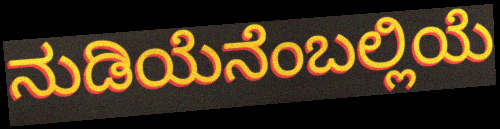
ನುಡಿಯೆನೆಂಬಲ್ಲಿಯೆ